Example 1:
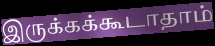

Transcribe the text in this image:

இருக்கக்கூடாதாம்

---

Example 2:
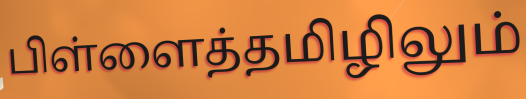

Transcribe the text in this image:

பிள்ளைத்தமிழிலும்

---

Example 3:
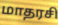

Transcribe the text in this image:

மாதரசி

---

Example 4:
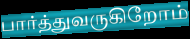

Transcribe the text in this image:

பார்த்துவருகிறோம்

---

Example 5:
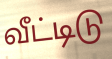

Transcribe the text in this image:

வீட்டிடு